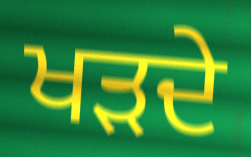
ਖੜਦੇ